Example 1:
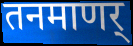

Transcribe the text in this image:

तनमाणर्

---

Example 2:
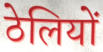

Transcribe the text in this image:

ठेलियों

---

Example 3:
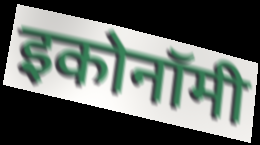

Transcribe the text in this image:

इकोनॉमी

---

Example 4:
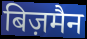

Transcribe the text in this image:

बिज़मैन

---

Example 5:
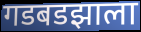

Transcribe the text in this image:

गडबडझाला